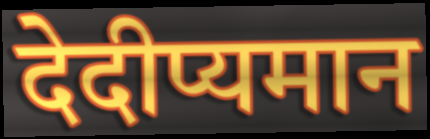
देदीप्यमान